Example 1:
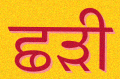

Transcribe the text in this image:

ਛੜੀ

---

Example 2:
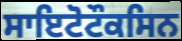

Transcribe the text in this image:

ਸਾਇਟੋਟੌਕਸਿਨ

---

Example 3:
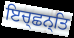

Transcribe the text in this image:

ਇਚ੍ਛਨ੍ਤਿ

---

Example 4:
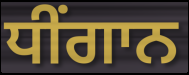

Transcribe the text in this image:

ਧੀਂਗਾਨ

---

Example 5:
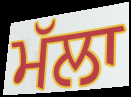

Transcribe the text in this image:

ਮੱਲਾ